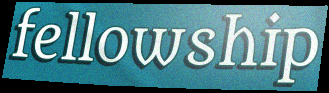
fellowship